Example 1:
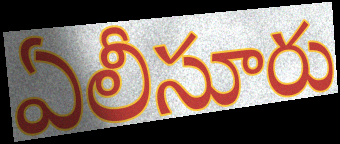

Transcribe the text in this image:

ఏలీసూరు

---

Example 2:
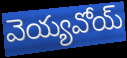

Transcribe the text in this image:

వెయ్యవోయ్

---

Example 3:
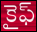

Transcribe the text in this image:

కైఫ్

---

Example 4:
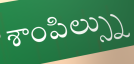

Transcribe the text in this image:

శాంపిల్స్ను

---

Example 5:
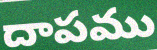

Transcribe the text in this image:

దాపము